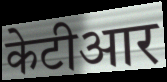
केटीआर